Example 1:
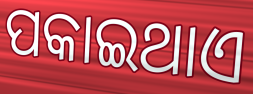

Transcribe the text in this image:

ପକାଇଥାଏ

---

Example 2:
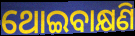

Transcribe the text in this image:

ଥୋଇବାକ୍ଷଣି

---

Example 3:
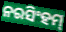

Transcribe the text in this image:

ନରସିଂହମ୍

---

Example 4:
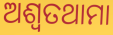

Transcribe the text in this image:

ଅଶ୍ୱତଥାମା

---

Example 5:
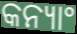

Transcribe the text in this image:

କନ୍ୟାଂ